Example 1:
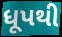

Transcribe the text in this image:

ધૂપથી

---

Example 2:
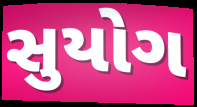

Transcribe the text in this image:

સુયોગ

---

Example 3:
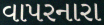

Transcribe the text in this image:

વાપરનારા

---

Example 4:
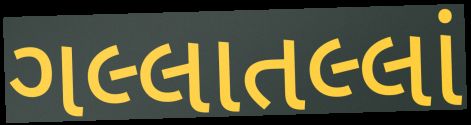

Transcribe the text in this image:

ગલ્લાતલ્લાં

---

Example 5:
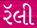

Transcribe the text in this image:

રૅલી